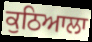
ਕੁਠਿਆਲਾ